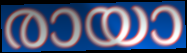
രായാ